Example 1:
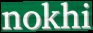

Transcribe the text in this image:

nokhi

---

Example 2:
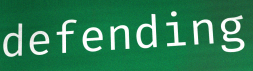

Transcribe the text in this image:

defending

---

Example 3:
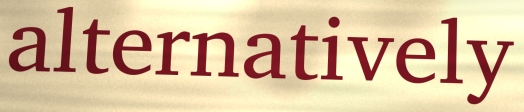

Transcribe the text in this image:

alternatively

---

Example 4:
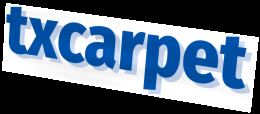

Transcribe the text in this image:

txcarpet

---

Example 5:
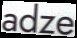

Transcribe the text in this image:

adze